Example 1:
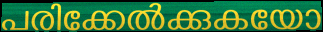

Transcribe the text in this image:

പരിക്കേൽക്കുകയോ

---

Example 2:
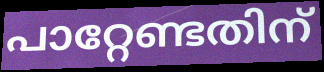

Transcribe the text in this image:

പാറ്റേണ്ടതിന്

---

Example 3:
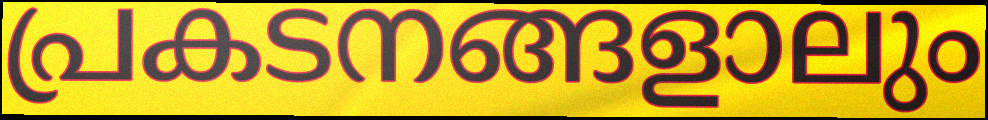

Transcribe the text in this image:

പ്രകടനങ്ങളാലും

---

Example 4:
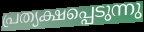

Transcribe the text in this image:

പ്രത്യക്ഷപ്പെടുന്നു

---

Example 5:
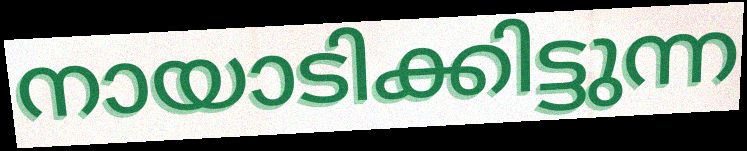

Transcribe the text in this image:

നായാടിക്കിട്ടുന്ന